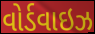
વોર્ડવાઇઝ